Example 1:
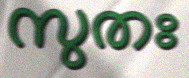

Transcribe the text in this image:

സുതഃ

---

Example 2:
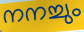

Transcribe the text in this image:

നനച്ചും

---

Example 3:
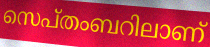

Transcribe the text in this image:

സെപ്തംബറിലാണ്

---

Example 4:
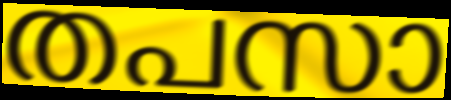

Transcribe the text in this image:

തപസാ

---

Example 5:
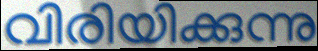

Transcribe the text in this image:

വിരിയിക്കുന്നു